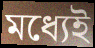
মধ্যেই